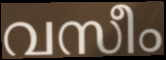
വസീം